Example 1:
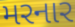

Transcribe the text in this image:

મરનાર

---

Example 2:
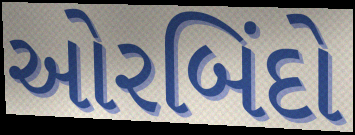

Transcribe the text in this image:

ઓરબિંદો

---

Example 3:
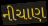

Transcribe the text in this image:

નીચાણ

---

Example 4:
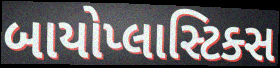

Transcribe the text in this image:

બાયોપ્લાસ્ટિક્સ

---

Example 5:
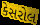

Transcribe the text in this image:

કેસરોલ